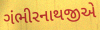
ગંભીરનાથજીએ